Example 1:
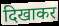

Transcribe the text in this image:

दिखाकर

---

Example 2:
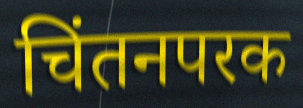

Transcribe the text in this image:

चिंतनपरक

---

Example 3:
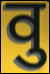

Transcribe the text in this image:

वु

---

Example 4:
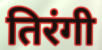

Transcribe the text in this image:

तिरंगी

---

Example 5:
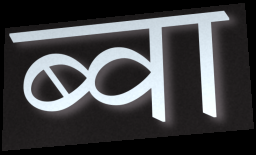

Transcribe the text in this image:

ब्वा